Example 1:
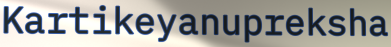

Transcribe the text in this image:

Kartikeyanupreksha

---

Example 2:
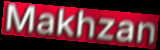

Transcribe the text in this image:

Makhzan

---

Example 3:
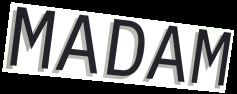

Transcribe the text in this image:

MADAM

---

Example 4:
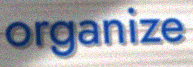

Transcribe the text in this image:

organize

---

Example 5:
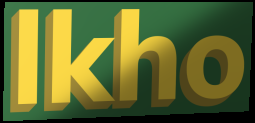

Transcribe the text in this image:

lkho